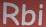
Rbi